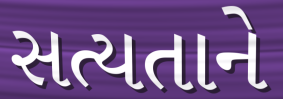
સત્યતાને